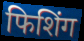
फिशिंग